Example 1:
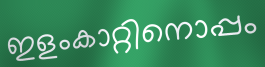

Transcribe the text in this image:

ഇളംകാറ്റിനൊപ്പം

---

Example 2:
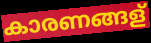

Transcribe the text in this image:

കാരണങ്ങള്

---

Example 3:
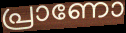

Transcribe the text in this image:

പ്രാണോ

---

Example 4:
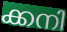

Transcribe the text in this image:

ക്കനി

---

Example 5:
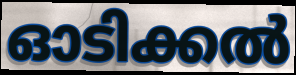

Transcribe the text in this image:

ഓടിക്കൽ